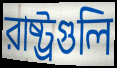
রাষ্ট্রগুলি